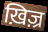
ख़िज़्र